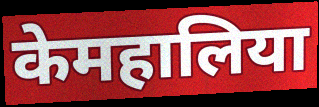
केमहालिया